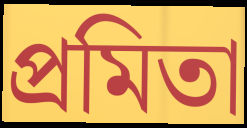
প্রমিতা